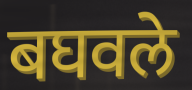
बघवले